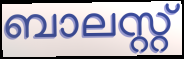
ബാലസ്റ്റ്